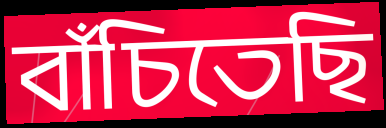
বাঁচিতেছি